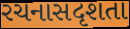
રચનાસદૃશતા